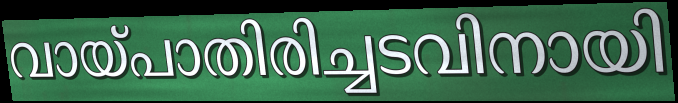
വായ്പാതിരിച്ചടവിനായി